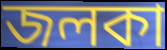
জলকা